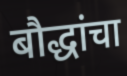
बौद्धांचा